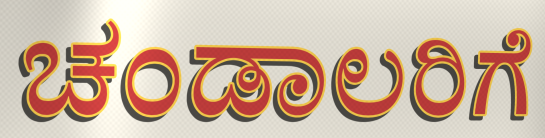
ಚಂಡಾಲರಿಗೆ